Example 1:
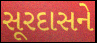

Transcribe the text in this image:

સૂરદાસને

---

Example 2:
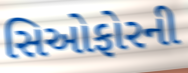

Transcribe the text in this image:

સિઓફોરની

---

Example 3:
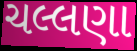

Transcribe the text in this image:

ચલ્લણા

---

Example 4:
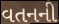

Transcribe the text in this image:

વતનની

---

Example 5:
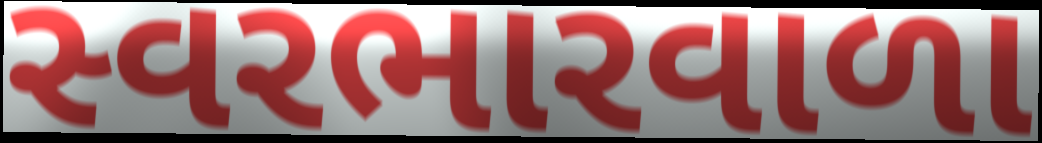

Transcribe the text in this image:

સ્વરભારવાળા